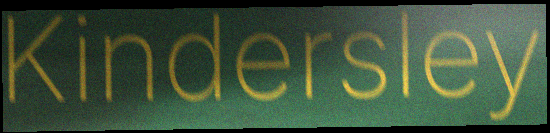
Kindersley